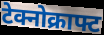
टेक्नोक्राफ्ट